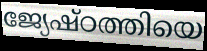
ജ്യേഷ്ഠത്തിയെ